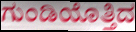
ಗುಂಡಿಯೊತ್ತಿದ